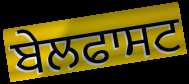
ਬੇਲਫਾਸਟ